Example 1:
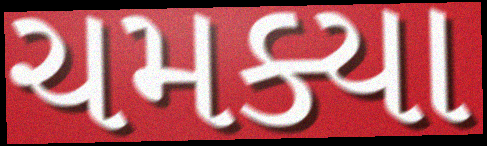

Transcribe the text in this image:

ચમક્યા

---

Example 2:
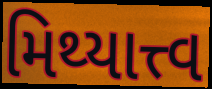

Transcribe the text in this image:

મિથ્યાત્ત્વ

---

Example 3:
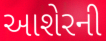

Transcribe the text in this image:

આશેરની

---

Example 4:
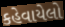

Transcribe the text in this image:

કહેવાયેલો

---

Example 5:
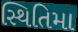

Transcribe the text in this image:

સ્થિતિમા